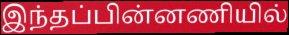
இந்தப்பின்னணியில்